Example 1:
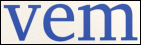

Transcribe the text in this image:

vem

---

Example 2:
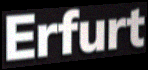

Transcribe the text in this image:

Erfurt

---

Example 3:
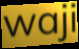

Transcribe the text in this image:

waji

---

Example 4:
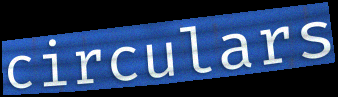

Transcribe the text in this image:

circulars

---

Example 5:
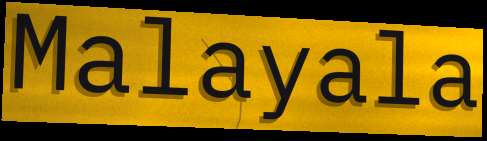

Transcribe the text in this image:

Malayala